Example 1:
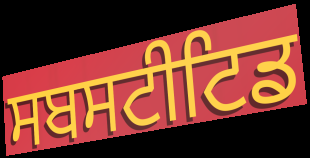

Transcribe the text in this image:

ਸਬਸਟੀਟਿਡ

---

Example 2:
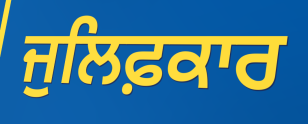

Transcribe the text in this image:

ਜੁਲਿਫ਼ਕਾਰ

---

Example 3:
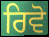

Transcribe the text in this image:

ਰਿਵੋ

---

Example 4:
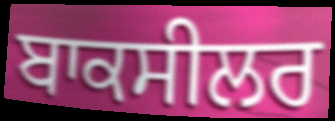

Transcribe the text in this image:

ਬਾਕਸੀਲਰ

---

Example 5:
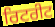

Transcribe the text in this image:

ਰਿਟਰੀਟ